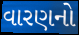
વારણનો